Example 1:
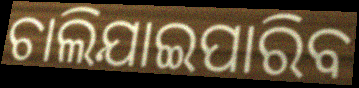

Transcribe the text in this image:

ଚାଲିଯାଇପାରିବ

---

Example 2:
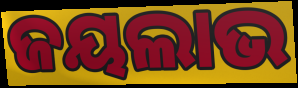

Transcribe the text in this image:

ଜୟଲାଭ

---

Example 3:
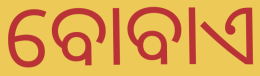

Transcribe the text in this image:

ବୋବାଏ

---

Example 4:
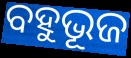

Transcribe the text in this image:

ବହୁଭୂଜ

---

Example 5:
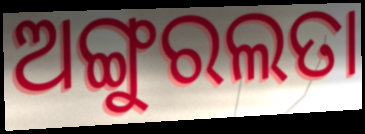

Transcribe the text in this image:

ଅଙ୍ଗୁରଲତା